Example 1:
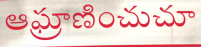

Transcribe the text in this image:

ఆఘ్రాణించుచూ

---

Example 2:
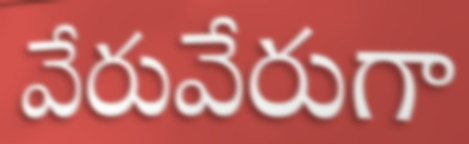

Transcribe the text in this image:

వేరువేరుగా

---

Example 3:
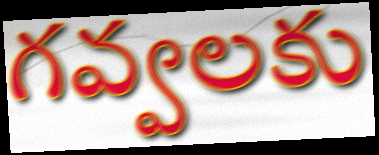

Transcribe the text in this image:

గవ్వలకు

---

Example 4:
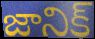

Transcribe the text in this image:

జానిక్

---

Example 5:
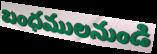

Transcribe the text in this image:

బంధములనుండి